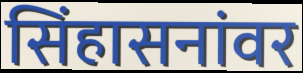
सिंहासनांवर